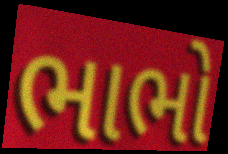
ભાભો